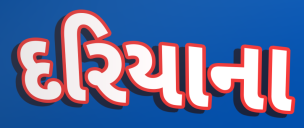
દરિયાના